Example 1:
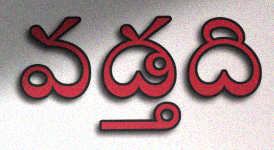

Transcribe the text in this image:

వడ్తది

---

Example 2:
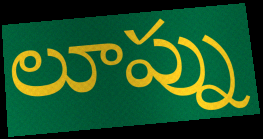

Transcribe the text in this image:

లూప్ను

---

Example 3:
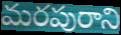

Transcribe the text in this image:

మరపురాని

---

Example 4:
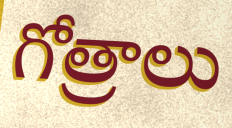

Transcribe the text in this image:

గోత్రాలు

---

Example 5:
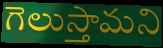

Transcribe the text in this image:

గెలుస్తామని